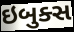
ઇબુક્સ